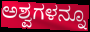
ಅಶ್ವಗಳನ್ನೂ